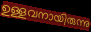
ഉള്ളവനായിരുന്നു